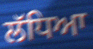
ਲੱਧਿਆ